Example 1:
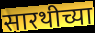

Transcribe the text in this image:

सारथीच्या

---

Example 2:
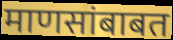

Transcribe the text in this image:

माणसांबाबत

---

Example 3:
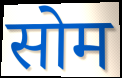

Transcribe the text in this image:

सोम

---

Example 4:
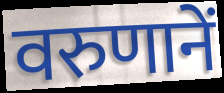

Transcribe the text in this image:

वरुणानें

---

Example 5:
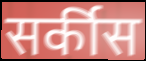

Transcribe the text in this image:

सर्कीस